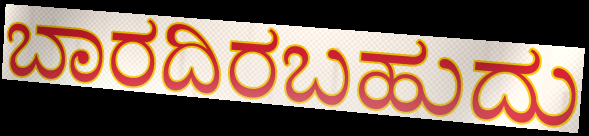
ಬಾರದಿರಬಹುದು